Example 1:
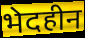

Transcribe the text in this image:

भेदहीन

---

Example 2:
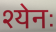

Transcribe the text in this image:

श्येनः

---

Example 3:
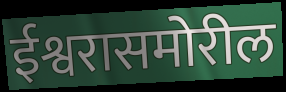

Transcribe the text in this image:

ईश्वरासमोरील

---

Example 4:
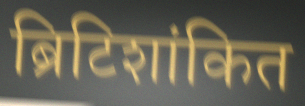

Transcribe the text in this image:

ब्रिटिशांकित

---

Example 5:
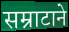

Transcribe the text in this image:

सम्राटाने